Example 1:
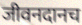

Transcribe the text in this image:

जीवनदानच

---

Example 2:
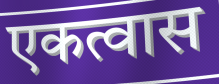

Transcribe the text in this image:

एकत्वास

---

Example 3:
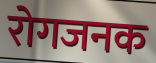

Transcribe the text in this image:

रोगजनक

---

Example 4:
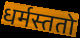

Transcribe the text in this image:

धर्मस्ततो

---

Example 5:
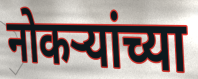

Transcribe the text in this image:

नोकऱ्यांच्या